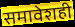
समावेशही